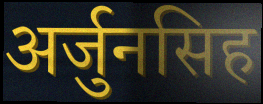
अर्जुनसिह